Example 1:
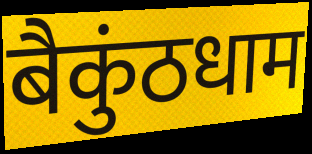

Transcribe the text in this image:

बैकुंठधाम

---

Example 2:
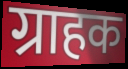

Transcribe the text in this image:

ग्राहक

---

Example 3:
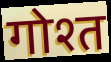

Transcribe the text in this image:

गोश्त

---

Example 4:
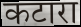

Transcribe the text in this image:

कटारा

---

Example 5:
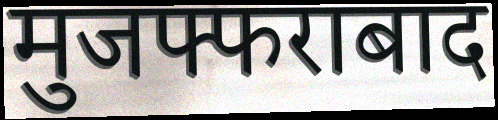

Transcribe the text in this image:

मुजफ्फराबाद